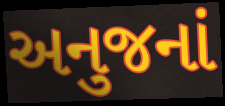
અનુજનાં